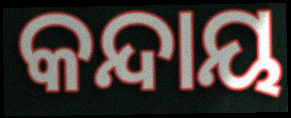
କନ୍ଦାୟ